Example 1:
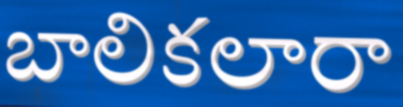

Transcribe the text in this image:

బాలికలారా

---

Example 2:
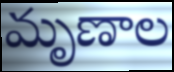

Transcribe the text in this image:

మృణాల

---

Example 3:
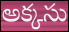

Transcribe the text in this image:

అక్కసు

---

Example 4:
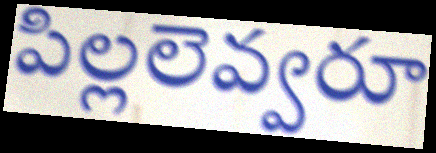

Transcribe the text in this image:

పిల్లలెవ్వరూ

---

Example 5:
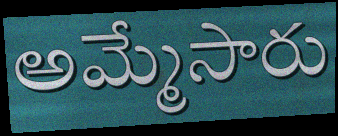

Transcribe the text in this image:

అమ్మేసారు